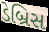
ડેબ્રિસ